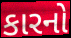
કારનો